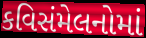
કવિસંમેલનોમાં